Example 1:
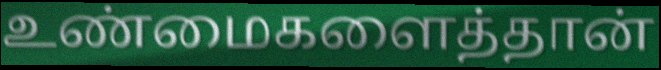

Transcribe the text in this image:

உண்மைகளைத்தான்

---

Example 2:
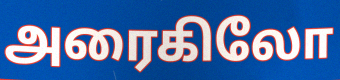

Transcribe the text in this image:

அரைகிலோ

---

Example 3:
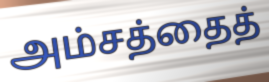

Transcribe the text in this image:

அம்சத்தைத்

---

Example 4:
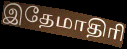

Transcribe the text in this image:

இதேமாதிரி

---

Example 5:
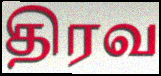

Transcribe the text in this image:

திரவ